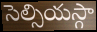
సెల్సియస్గా